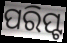
ପରିପ୍ଟ